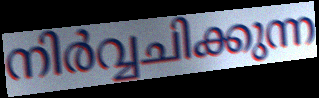
നിർവ്വചിക്കുന്ന